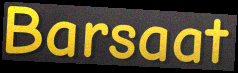
Barsaat